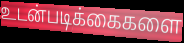
உடன்படிக்கைகளை